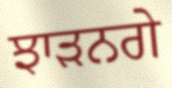
ਝਾੜਨਗੇ